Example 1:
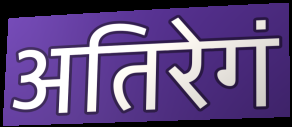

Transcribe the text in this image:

अतिरेगं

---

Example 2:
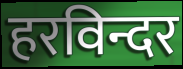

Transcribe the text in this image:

हरविन्दर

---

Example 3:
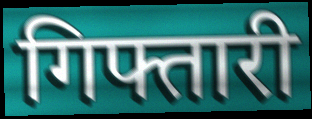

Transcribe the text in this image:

गिफ्तारी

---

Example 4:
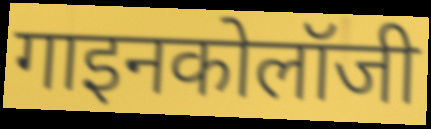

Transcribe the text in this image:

गाइनकोलॉजी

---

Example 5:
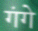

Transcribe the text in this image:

गंगे